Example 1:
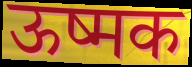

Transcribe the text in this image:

ऊष्मक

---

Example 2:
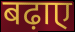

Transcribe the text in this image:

बढ़ाए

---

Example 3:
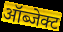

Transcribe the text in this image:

ऑब्जेक्ट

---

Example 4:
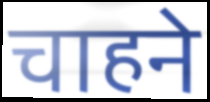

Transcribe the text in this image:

चाहने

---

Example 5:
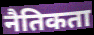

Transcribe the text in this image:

नैतिकता